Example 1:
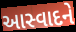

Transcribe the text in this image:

આસ્વાદને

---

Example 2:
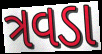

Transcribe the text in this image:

ત્રવડા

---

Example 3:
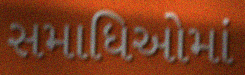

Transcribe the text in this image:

સમાધિઓમાં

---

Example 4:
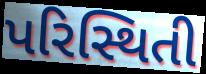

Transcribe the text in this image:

પરિસ્થિતી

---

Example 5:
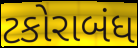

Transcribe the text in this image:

ટકોરાબંધ